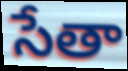
సేతా